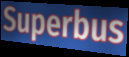
Superbus